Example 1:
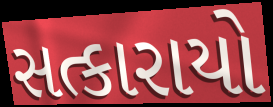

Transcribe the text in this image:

સત્કારાયો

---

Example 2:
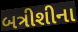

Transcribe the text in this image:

બત્રીશીના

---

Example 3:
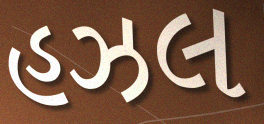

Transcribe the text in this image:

હઝલ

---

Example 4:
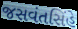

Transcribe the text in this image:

જસવંતસિંહે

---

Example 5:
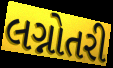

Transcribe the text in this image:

લગ્નોતરી